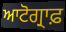
ਆਟੋਗ੍ਰਾਫ਼